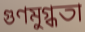
গুণমুগ্ধতা